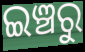
ଇଞ୍ଚରୁ